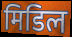
मिडिल